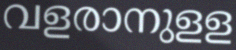
വളരാനുളള